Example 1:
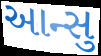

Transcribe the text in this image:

આન્સુ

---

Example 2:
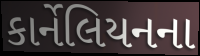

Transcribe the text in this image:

કાર્નેલિયનના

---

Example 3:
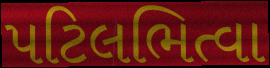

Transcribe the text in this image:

પટિલભિત્વા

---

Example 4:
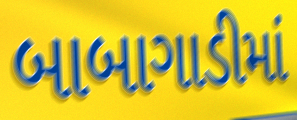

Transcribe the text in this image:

બાબાગાડીમાં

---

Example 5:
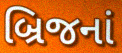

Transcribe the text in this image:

બ્રિજનાં